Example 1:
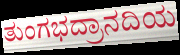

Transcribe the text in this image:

ತುಂಗಭದ್ರಾನದಿಯ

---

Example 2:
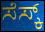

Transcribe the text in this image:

ಸೆಸ್ಕ್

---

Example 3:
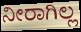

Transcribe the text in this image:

ನೀರಾಗಿಲ್ಲ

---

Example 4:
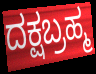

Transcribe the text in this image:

ದಕ್ಷಬ್ರಹ್ಮ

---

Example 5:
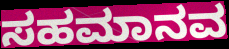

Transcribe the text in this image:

ಸಹಮಾನವ